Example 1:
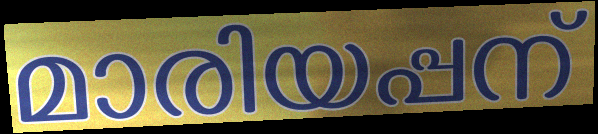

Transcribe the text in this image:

മാരിയപ്പന്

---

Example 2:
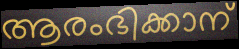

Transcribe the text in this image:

ആരംഭിക്കാന്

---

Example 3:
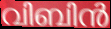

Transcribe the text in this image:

വിബിൻ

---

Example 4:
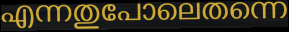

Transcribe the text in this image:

എന്നതുപോലെതന്നെ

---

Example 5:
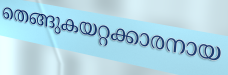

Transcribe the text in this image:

തെങ്ങുകയറ്റക്കാരനായ